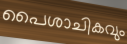
പൈശാചികവും